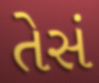
તેસં